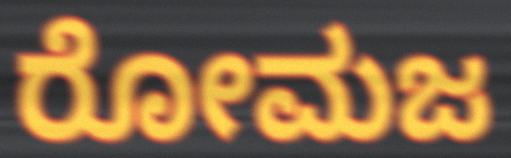
ರೋಮಜ